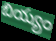
బియ్యం